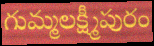
గుమ్మలక్ష్మీపురం